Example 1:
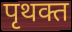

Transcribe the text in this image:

पृथक्त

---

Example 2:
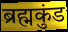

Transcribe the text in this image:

ब्रह्मकुंड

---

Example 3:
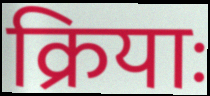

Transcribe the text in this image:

क्रियाः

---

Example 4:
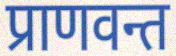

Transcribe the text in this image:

प्राणवन्त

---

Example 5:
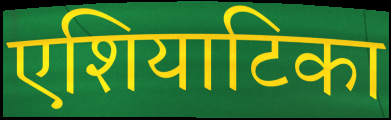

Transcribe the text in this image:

एशियाटिका